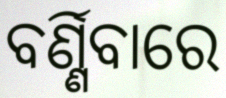
ବର୍ଣ୍ଣିବାରେ